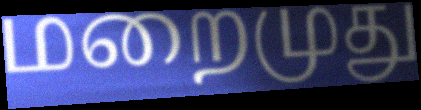
மறைமுது